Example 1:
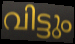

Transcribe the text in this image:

വിട്ടും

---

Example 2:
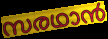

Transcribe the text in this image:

സരഥാൻ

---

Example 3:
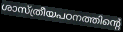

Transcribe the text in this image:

ശാസ്ത്രീയപഠനത്തിന്റെ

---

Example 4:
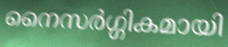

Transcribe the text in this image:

നൈസർഗ്ഗികമായി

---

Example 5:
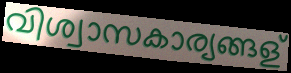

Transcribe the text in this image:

വിശ്വാസകാര്യങ്ങള്